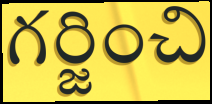
గర్జించి